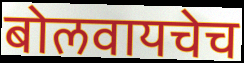
बोलवायचेच